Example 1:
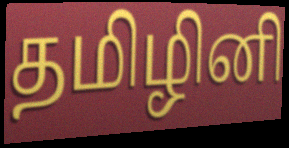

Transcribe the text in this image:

தமிழினி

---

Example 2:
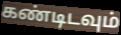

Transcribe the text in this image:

கண்டிடவும்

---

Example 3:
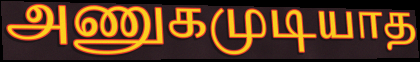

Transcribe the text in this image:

அணுகமுடியாத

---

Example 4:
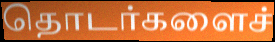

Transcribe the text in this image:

தொடர்களைச்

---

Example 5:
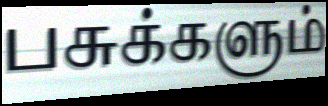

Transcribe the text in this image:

பசுக்களும்